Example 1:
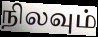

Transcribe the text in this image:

நிலவும்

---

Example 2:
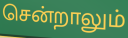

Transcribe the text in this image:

சென்றாலும்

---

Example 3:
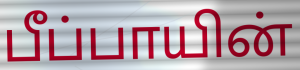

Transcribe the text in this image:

பீப்பாயின்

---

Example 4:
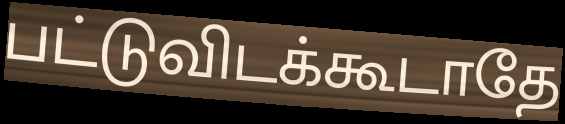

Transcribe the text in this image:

பட்டுவிடக்கூடாதே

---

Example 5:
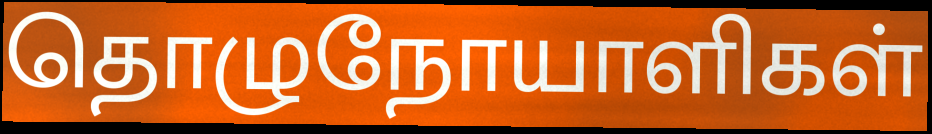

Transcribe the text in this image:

தொழுநோயாளிகள்